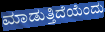
ಮಾಡುತ್ತಿದೆಯೆಂದು